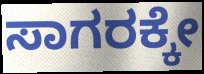
ಸಾಗರಕ್ಕೇ